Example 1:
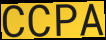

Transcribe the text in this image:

CCPA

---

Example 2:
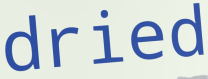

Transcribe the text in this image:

dried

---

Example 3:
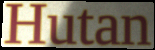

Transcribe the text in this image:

Hutan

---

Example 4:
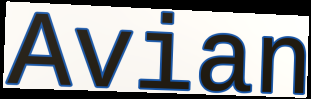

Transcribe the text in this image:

Avian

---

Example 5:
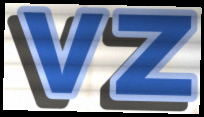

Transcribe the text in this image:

vz